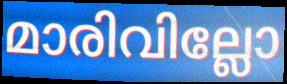
മാരിവില്ലോ